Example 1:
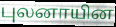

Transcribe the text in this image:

புலனாயின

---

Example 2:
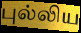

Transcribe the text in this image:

புல்லிய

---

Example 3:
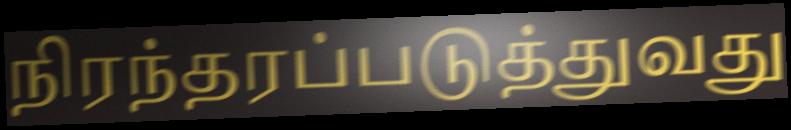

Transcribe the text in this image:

நிரந்தரப்படுத்துவது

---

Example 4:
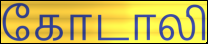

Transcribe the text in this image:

கோடாலி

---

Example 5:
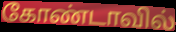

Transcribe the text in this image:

கோண்டாவில்